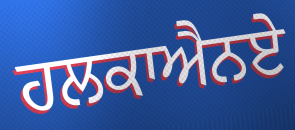
ਹਲਕਾਐਨਏ